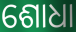
ଶୋଧା